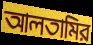
আলতামির